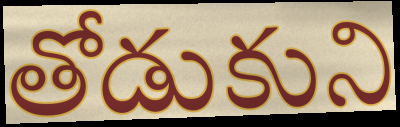
తోడుకుని